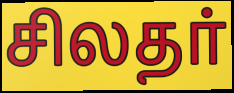
சிலதர்